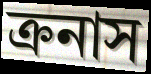
ক্রনাস